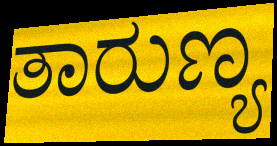
ತಾರುಣ್ಯ